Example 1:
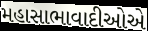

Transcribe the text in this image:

મહાસાભાવાદીઓએ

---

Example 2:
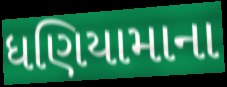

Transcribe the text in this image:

ધણિયામાના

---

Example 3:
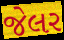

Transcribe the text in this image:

જેલર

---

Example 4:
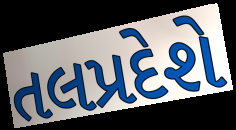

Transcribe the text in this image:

તલપ્રદેશે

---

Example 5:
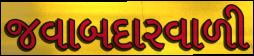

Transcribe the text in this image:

જવાબદારવાળી